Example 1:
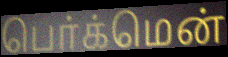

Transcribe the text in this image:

பெர்க்மென்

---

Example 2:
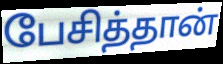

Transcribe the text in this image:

பேசித்தான்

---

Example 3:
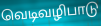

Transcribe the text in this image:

வெடிவழிபாடு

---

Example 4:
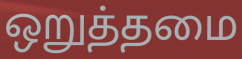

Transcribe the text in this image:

ஒறுத்தமை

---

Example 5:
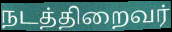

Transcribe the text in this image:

நடத்திறைவர்